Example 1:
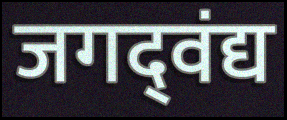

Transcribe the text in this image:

जगद्‌वंद्य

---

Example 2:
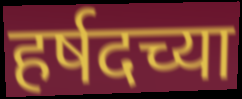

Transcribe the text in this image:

हर्षदच्या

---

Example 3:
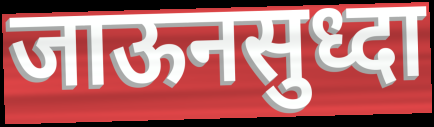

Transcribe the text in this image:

जाऊनसुध्दा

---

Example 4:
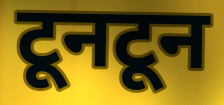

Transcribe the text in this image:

टूनटून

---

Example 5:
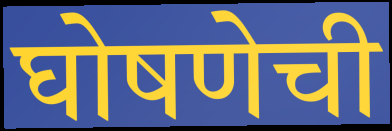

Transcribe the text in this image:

घोषणेची